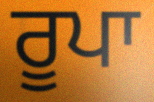
ਰੂਪਾ